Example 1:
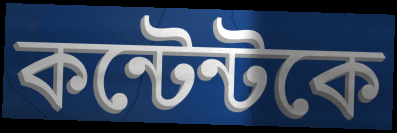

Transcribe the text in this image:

কন্টেন্টকে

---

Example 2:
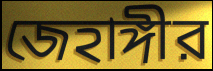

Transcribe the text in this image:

জেহাঙ্গীর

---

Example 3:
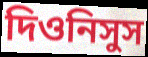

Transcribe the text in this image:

দিওনিসুস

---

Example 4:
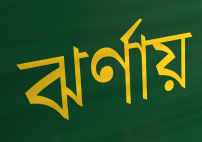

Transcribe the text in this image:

ঝর্ণায়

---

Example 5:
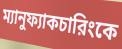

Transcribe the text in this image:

ম্যানুফ্যাকচারিংকে